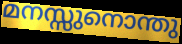
മനസ്സുനൊന്തു